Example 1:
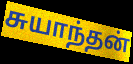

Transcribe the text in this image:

சுயாந்தன்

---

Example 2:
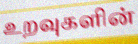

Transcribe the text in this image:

உறவுகளின்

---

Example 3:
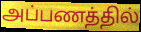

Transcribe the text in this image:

அப்பணத்தில்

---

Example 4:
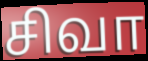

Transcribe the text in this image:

சிவா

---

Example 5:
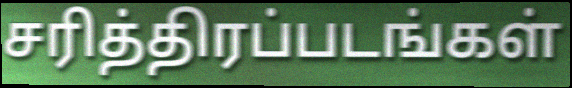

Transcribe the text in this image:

சரித்திரப்படங்கள்